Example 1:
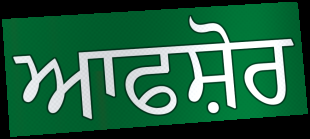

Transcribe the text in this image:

ਆਫਸ਼ੋਰ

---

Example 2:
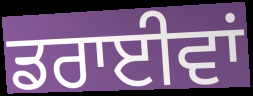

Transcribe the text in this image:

ਡਰਾਈਵਾਂ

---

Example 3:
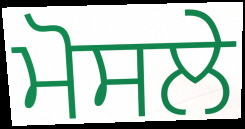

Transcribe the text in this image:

ਮੋਸਲੇ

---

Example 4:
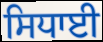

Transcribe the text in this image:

ਸਿਧਾਈ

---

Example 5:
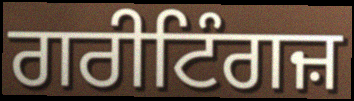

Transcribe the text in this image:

ਗਰੀਟਿੰਗਜ਼